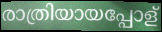
രാത്രിയായപ്പോള്